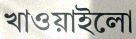
খাওয়াইলো